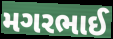
મગરભાઈ